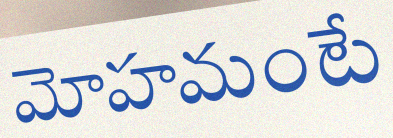
మోహమంటే